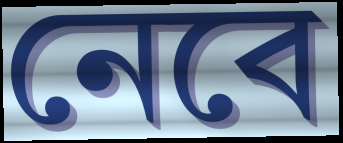
নেবে